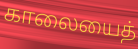
காலையைத்